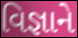
વિજ્ઞાને